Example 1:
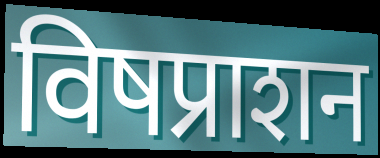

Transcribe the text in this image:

विषप्राशन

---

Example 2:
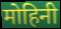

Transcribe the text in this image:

मोहिनी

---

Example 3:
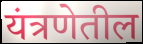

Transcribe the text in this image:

यंत्रणेतील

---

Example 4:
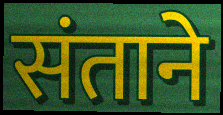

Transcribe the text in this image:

संताने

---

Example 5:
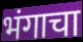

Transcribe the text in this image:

भंगाचा